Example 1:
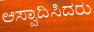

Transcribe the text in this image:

ಆಸ್ವಾದಿಸಿದರು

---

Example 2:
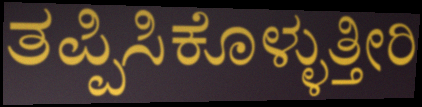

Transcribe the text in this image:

ತಪ್ಪಿಸಿಕೊಳ್ಳುತ್ತೀರಿ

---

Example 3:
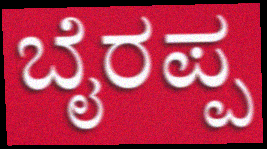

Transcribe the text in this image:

ಬೈರಪ್ಪ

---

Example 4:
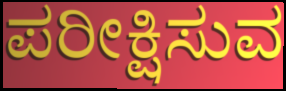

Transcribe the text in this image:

ಪರೀಕ್ಷಿಸುವ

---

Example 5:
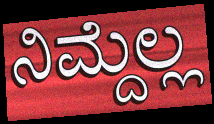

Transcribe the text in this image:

ನಿಮ್ದೆಲ್ಲ